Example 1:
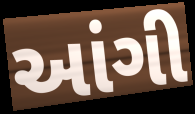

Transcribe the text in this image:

આંગી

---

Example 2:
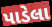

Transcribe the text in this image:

પાડેલા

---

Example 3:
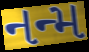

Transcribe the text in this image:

નન્મ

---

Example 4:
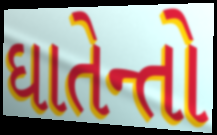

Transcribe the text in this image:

ઘાતેન્તો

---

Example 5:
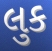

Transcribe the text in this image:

લુક